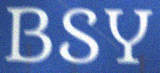
BSY